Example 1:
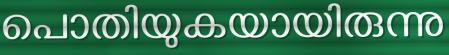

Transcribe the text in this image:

പൊതിയുകയായിരുന്നു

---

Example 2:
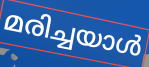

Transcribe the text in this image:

മരിച്ചയാൾ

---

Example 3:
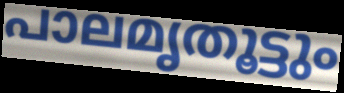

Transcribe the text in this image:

പാലമൃതൂട്ടും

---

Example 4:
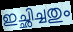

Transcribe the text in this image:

ഇച്ഛിച്ചതും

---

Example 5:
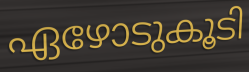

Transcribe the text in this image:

ഏഴോടുകൂടി